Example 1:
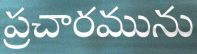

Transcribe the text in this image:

ప్రచారమును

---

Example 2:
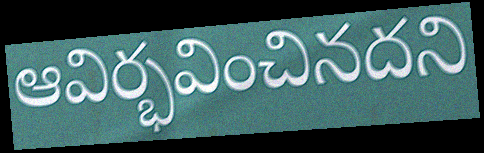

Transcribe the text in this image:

ఆవిర్భవించినదని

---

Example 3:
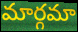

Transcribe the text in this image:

మార్గమా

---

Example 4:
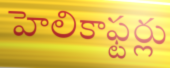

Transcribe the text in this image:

హెలికాఫ్టర్లు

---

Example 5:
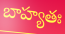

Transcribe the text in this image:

బాహ్యతః